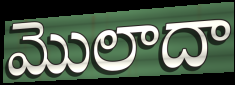
మొలాదా